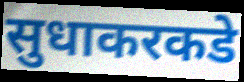
सुधाकरकडे